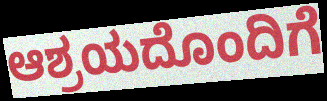
ಆಶ್ರಯದೊಂದಿಗೆ